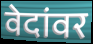
वेदांवर